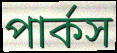
পার্কস